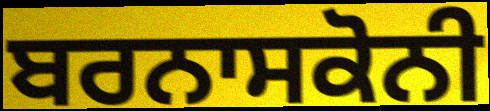
ਬਰਨਾਸਕੋਨੀ